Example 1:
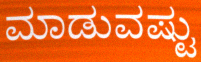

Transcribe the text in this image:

ಮಾಡುವಷ್ಟು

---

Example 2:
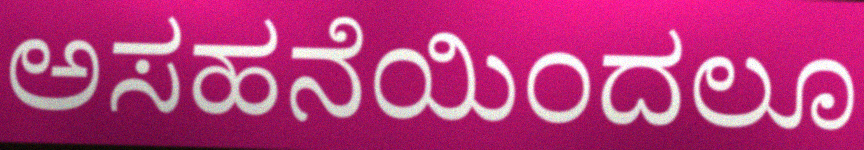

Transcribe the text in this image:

ಅಸಹನೆಯಿಂದಲೂ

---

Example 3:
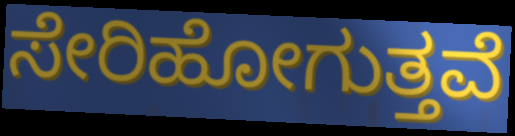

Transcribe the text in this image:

ಸೇರಿಹೋಗುತ್ತವೆ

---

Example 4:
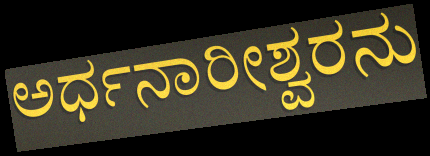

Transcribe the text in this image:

ಅರ್ಧನಾರೀಶ್ವರನು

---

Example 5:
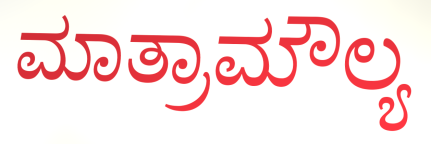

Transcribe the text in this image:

ಮಾತ್ರಾಮೌಲ್ಯ